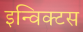
इन्विक्टस